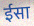
ईसा